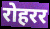
रोहरर